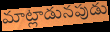
మాట్లాడునపుడు